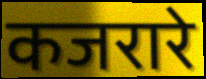
कजरारे